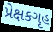
પ્રેક્ષકગૃહ